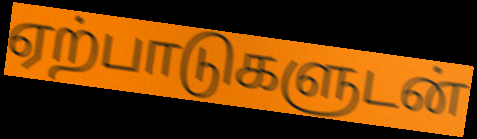
ஏற்பாடுகளுடன்